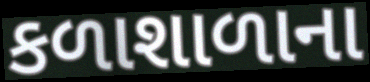
કળાશાળાના